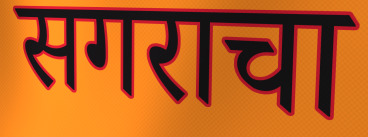
सगराचा